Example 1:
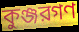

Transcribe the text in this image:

কুঞ্জরগণ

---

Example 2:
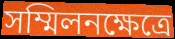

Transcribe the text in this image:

সম্মিলনক্ষেত্রে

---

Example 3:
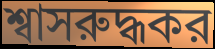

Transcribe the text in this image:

শ্বাসরুদ্ধকর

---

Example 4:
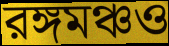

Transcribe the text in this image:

রঙ্গমঞ্চও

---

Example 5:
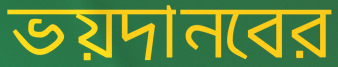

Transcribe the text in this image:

ভয়দানবের